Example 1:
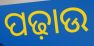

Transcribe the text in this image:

ପଢ଼ାଉ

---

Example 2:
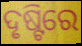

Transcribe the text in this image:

ଦୃଷ୍ଟିରେ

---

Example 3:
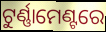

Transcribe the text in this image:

ଟୁର୍ଣ୍ଣାମେଣ୍ଟରେ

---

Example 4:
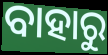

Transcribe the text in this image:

ବାହାରୁ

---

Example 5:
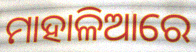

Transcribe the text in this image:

ମାହାଳିଆରେ